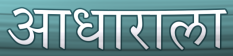
आधाराला